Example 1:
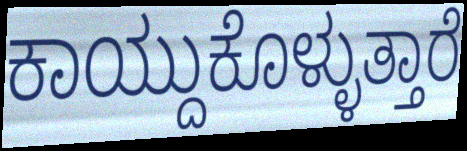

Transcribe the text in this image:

ಕಾಯ್ದುಕೊಳ್ಳುತ್ತಾರೆ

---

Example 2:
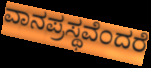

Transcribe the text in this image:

ವಾನಪ್ರಸ್ಥವೆಂದರೆ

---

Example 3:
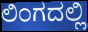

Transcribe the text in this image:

ಲಿಂಗದಲ್ಲಿ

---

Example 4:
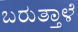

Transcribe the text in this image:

ಬರುತ್ತಾಳೆ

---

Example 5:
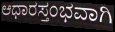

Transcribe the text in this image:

ಆಧಾರಸ್ತಂಭವಾಗಿ